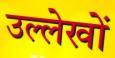
उल्लेखों